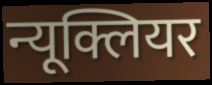
न्‍यूक्लियर